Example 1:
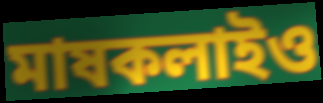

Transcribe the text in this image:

মাষকলাইও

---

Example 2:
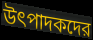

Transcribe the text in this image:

উৎপাদকদের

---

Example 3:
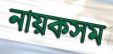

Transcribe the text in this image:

নায়কসম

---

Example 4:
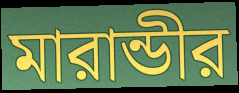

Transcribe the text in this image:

মারান্ডীর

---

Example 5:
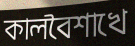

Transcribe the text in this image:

কালবৈশাখে